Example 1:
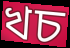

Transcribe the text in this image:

খচ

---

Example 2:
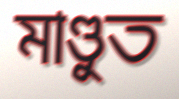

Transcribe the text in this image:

মাণ্ডুত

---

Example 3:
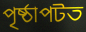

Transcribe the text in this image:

পৃষ্ঠাপটত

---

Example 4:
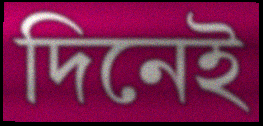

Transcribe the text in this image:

দিনেই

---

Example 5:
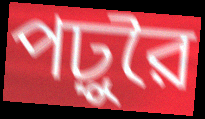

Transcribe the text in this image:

পঢ়ুৱৈ